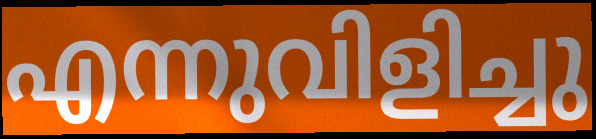
എന്നുവിളിച്ചു